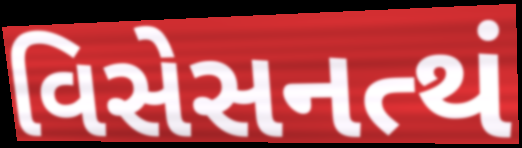
વિસેસનત્થં